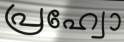
പ്രഹ്വോ